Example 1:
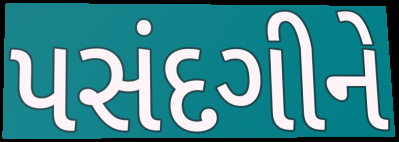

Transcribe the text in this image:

પસંદગીને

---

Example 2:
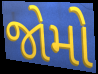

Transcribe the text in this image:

જોમો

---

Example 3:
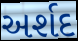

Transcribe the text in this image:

અર્શદ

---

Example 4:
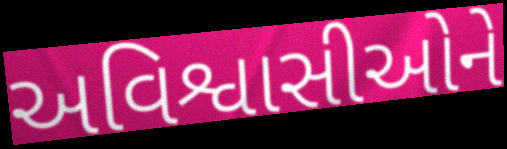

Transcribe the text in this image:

અવિશ્વાસીઓને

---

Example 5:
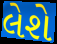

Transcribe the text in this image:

લેશે